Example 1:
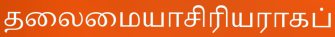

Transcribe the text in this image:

தலைமையாசிரியராகப்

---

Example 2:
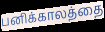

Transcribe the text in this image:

பனிக்காலத்தை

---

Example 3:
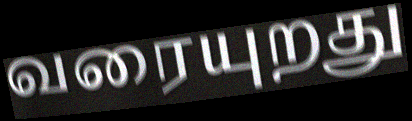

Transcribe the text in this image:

வரையுறது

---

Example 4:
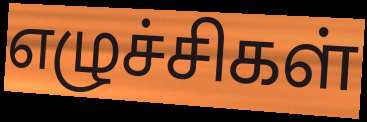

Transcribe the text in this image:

எழுச்சிகள்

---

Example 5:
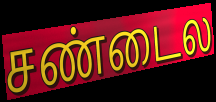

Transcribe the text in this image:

சண்டைல